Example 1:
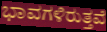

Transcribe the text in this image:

ಭಾವಗಳಿರುತ್ತವೆ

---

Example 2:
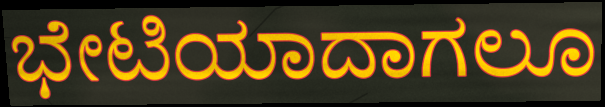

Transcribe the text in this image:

ಭೇಟಿಯಾದಾಗಲೂ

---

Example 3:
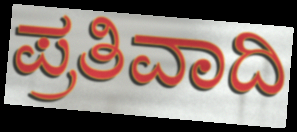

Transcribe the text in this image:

ಪ್ರತಿವಾದಿ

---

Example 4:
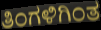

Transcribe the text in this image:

ತಿಂಗಳಿಗಿಂತ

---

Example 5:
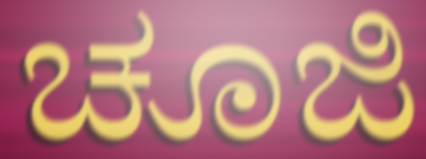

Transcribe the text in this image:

ಚೂಜಿ